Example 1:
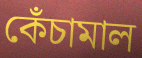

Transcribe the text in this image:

কেঁচামাল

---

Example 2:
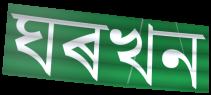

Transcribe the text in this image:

ঘৰখন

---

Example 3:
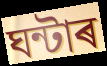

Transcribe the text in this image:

ঘন্টাৰ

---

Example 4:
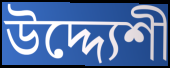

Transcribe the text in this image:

উদ্দ্যেশী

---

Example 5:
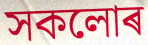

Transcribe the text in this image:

সকলোৰ